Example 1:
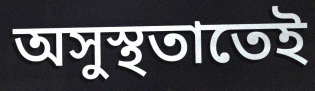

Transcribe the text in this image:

অসুস্থতাতেই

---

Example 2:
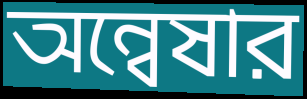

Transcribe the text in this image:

অন্বেষার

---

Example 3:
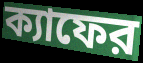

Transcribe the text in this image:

ক্যাফের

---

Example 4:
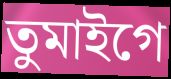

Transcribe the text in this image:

তুমাইগে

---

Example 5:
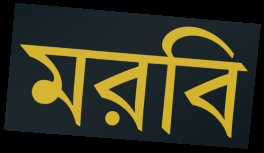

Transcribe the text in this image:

মরবি